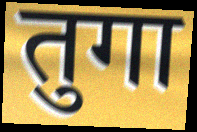
तुगा